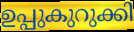
ഉപ്പുകുറുക്കി